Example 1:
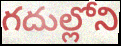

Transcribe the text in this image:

గదుల్లోని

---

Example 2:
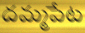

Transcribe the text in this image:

దమ్మపేట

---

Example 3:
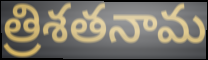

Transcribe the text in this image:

త్రిశతనామ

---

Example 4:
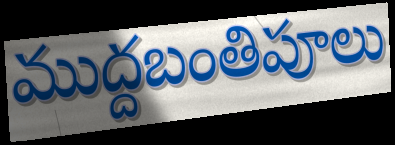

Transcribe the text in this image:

ముద్దబంతిపూలు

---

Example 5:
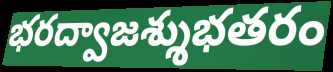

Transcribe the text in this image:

భరద్వాజశ్శుభతరం